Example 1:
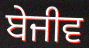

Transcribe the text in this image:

ਬੇਜੀਵ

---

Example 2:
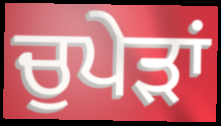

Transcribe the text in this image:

ਚੁਪੇੜਾਂ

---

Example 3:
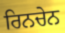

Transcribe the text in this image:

ਰਿਨਚੇਨ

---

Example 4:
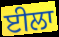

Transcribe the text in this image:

ਈਲਾ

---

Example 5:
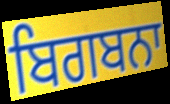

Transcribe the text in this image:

ਬਿਗਬਨਾ